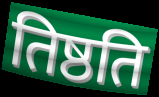
तिष्ठति